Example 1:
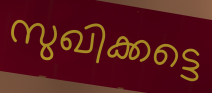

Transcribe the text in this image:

സുഖിക്കട്ടെ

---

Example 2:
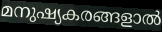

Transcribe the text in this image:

മനുഷ്യകരങ്ങളാൽ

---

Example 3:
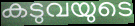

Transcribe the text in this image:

കടുവയുടെ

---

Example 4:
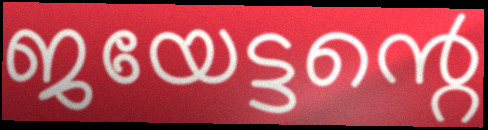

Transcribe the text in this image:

ജയേട്ടന്റെ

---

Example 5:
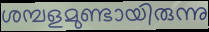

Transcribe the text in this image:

ശമ്പളമുണ്ടായിരുന്നു